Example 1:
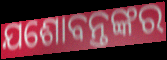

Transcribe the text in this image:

ଯଶୋବନ୍ତଙ୍କର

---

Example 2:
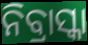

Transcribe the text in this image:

ନିବ୍ରାସ୍କା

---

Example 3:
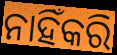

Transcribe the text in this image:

ନାହିଁକରି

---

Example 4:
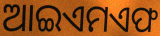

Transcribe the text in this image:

ଆଇଏମଏଫ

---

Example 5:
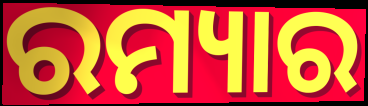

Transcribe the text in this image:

ରମ୍ୟାର